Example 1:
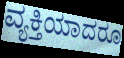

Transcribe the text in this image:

ವ್ಯಕ್ತಿಯಾದರೂ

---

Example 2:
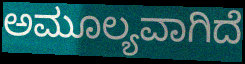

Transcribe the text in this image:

ಅಮೂಲ್ಯವಾಗಿದೆ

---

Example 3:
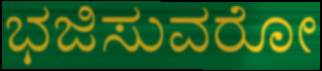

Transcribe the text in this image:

ಭಜಿಸುವರೋ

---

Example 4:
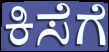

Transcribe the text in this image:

ಕಿಸೆಗೆ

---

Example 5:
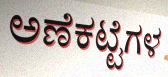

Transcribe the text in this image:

ಅಣೆಕಟ್ಟೆಗಳ